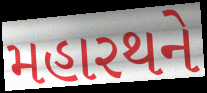
મહારથને